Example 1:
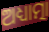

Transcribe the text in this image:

ଅଧ୍ୟାତ୍ମା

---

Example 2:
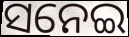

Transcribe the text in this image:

ସନେଇ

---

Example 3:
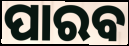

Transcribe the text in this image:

ପାରବ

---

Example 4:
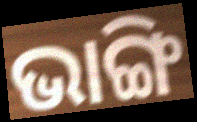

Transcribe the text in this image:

ଭାଙ୍ଗି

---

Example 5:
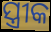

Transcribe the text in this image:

ସ୍ତ୍ରୀକ